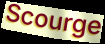
Scourge